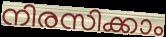
നിരസിക്കാം